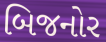
બિજનોર